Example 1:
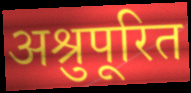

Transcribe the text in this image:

अश्रुपूरित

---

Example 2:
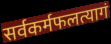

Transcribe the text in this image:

सर्वकर्मफलत्यागं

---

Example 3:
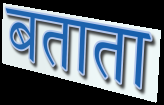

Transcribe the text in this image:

बताता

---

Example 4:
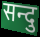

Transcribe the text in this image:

सन्दु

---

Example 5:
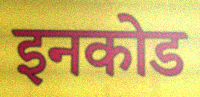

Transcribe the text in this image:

इनकोड